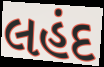
લહંદ